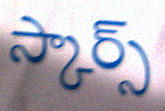
స్కార్స్